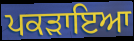
ਪਕੜਾਇਆ